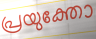
പ്രയുക്തോ